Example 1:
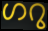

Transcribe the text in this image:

ഗറു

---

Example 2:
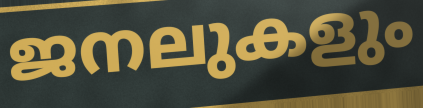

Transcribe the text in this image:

ജനലുകളും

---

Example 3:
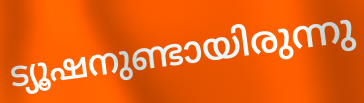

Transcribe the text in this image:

ട്യൂഷനുണ്ടായിരുന്നു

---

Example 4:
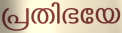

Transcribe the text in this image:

പ്രതിഭയേ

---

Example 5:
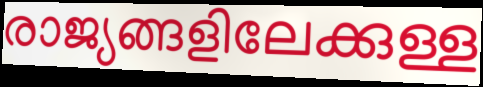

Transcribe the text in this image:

രാജ്യങ്ങളിലേക്കുള്ള